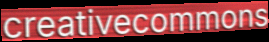
creativecommons